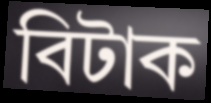
বিটাক